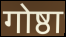
गोष्ठा